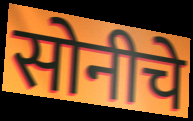
सोनीचे